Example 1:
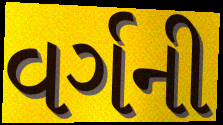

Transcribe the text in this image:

વર્ગની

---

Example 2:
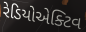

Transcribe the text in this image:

રેડિયોએક્ટિવ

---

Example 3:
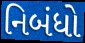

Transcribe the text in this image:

નિબંધો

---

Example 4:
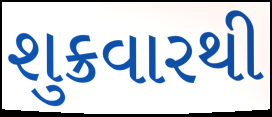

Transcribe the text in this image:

શુક્રવારથી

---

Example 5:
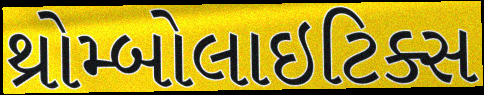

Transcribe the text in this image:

થ્રોમ્બોલાઇટિક્સ